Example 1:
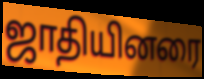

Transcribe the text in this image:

ஜாதியினரை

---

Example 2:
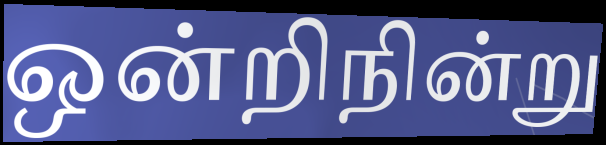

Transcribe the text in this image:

ஒன்றிநின்று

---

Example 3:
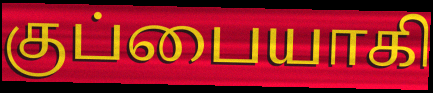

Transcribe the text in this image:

குப்பையாகி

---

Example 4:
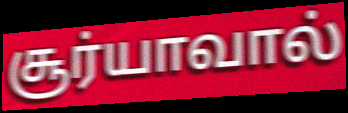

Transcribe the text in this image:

சூர்யாவால்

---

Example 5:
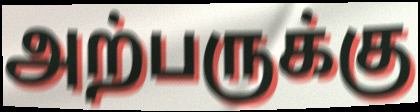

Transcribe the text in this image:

அற்பருக்கு